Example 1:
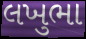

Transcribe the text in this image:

લખુભા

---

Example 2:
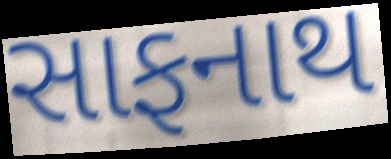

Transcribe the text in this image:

સાફનાથ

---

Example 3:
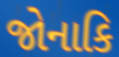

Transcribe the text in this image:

જોનાકિ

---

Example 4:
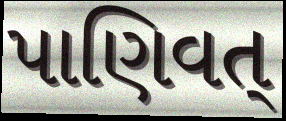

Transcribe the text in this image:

પાણિવત્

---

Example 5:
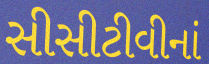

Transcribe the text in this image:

સીસીટીવીનાં